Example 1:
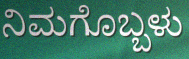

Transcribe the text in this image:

ನಿಮಗೊಬ್ಬಳು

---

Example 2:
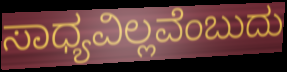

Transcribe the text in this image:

ಸಾಧ್ಯವಿಲ್ಲವೆಂಬುದು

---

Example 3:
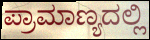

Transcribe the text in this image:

ಪ್ರಾಮಾಣ್ಯದಲ್ಲಿ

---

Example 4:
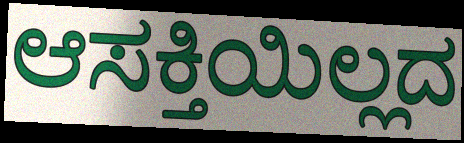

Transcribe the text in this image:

ಆಸಕ್ತಿಯಿಲ್ಲದ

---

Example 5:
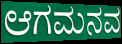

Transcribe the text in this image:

ಆಗಮನವ